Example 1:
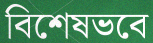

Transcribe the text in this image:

বিশেষভবে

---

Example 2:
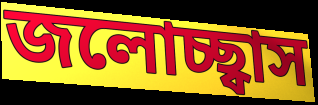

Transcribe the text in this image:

জলোচ্ছ্বাস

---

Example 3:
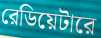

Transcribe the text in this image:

রেডিয়েটারে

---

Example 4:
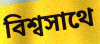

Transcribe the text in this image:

বিশ্বসাথে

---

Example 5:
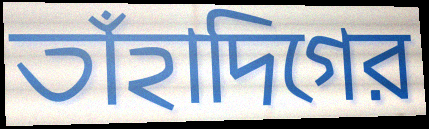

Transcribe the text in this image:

তাঁহাদিগের